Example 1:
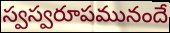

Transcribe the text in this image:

స్వస్వరూపమునందే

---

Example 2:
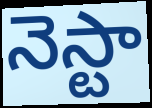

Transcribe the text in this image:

నెస్టా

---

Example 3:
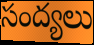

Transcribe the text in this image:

సంద్యలు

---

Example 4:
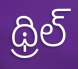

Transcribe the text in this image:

థ్రిల్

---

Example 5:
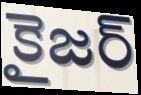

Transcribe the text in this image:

కైజర్